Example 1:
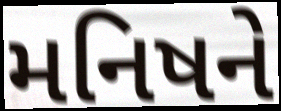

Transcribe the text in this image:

મનિષને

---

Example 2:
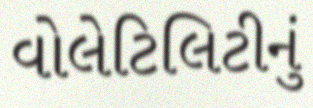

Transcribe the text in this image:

વોલેટિલિટીનું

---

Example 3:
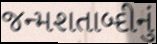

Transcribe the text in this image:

જન્મશતાબ્દીનું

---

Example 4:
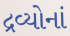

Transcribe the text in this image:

દ્રવ્યોનાં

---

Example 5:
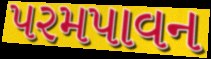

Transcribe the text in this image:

પરમપાવન